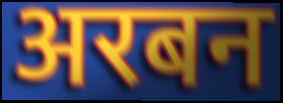
अरबन